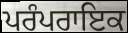
ਪਰੰਪਰਾਇਕ